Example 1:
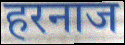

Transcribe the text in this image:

हरनाज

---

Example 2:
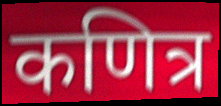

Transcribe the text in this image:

कणित्र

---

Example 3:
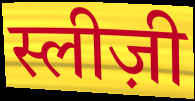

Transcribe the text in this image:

स्लीज़ी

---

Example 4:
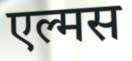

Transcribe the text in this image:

एल्मस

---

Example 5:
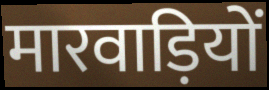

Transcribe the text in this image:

मारवाड़ियों